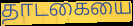
தாடகையை